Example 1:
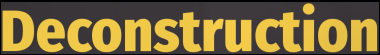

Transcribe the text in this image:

Deconstruction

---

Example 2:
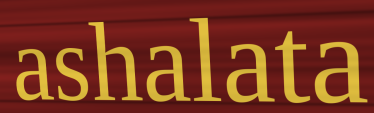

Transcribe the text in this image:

ashalata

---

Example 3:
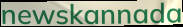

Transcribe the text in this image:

newskannada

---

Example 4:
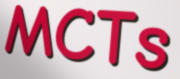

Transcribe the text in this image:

MCTs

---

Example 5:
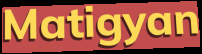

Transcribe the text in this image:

Matigyan